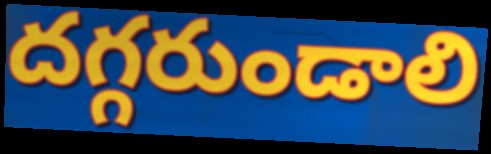
దగ్గరుండాలి